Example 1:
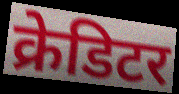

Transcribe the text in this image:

क्रेडिटर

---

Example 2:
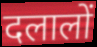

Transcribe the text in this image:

दलालों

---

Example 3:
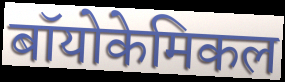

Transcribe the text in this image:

बॉयोकेमिकल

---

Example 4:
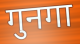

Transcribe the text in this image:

गुनगा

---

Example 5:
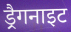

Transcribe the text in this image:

ड्रैगनाइट